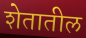
शेतातील